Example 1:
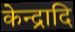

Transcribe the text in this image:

केन्द्रादि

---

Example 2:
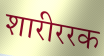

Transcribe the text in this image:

शारीररक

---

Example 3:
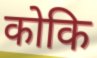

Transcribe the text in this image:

कोकि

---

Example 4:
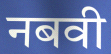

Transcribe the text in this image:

नबवी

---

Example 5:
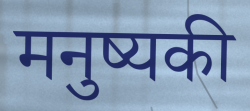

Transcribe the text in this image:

मनुष्यकी